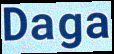
Daga